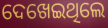
ଦେଖେଇଥିଲେ